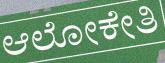
ಆಲೋಕೇತಿ